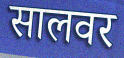
सालवर